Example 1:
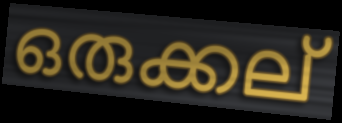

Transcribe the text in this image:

ഒരുക്കല്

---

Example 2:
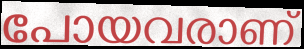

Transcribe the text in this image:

പോയവരാണ്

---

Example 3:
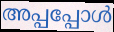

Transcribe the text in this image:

അപ്പപ്പോൾ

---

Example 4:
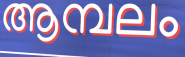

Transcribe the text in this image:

ആമ്പലം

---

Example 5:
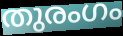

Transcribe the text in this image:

തുരംഗം